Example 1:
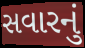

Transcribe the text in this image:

સવારનું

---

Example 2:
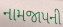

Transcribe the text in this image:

નામજાપની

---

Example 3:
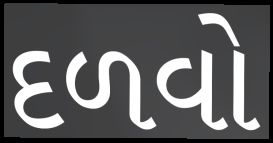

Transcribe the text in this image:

દળવો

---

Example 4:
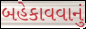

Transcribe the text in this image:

બહેકાવવાનું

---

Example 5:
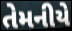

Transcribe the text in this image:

તેમનીયે